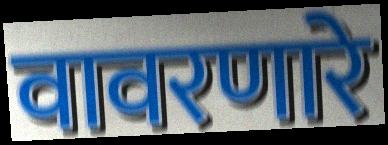
वावरणारे